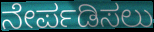
ನೇರ್ಪಡಿಸಲು